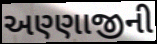
અણ્ણાજીની